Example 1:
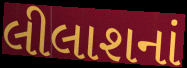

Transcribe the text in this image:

લીલાશનાં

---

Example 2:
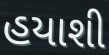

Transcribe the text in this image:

હયાશી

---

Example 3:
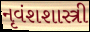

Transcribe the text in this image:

નૃવંશશાસ્ત્રી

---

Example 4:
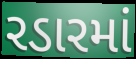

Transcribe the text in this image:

રડારમાં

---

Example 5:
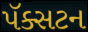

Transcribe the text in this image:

પૅક્સટન